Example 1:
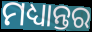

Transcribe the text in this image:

ମଧ୍ୟାନ୍ତର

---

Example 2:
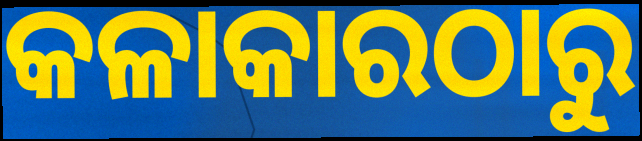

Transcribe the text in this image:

କଳାକାରଠାରୁ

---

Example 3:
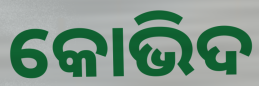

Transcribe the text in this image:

କୋଭିଦ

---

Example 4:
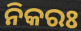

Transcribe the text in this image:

ନିକରଃ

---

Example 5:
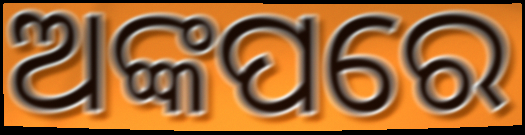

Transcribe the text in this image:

ଅଙ୍କପରେ